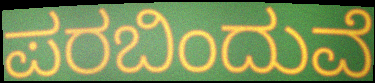
ಪರಬಿಂದುವೆ